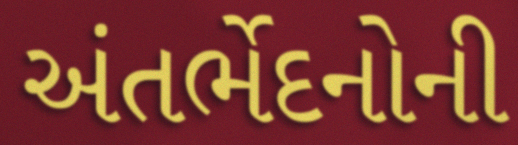
અંતર્ભેદનોની